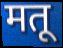
मतू